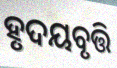
ହୃଦୟବୃତ୍ତି